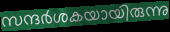
സന്ദർശകയായിരുന്നു